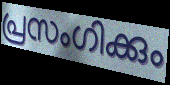
പ്രസംഗിക്കും